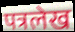
पत्रलेख